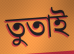
তুতাই